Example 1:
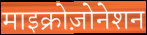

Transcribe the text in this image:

माइक्रोज़ोनेशन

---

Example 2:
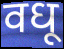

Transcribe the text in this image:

वधू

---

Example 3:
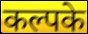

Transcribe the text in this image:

कल्पके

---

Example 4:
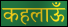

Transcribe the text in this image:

कहलाऊँ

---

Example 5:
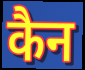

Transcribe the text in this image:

कैन